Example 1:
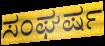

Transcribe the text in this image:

ಸಂಘರ್ಷ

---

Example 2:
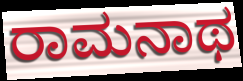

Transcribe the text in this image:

ರಾಮನಾಥ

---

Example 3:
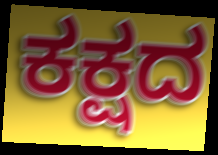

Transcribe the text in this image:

ಕಕ್ಷದ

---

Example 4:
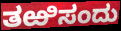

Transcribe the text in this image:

ತಱಿಸಂದು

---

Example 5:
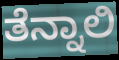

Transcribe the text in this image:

ತೆನ್ನಾಲಿ